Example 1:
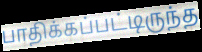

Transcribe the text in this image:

பாதிக்கப்பட்டிருந்த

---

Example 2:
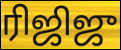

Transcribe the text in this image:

ரிஜிஜு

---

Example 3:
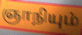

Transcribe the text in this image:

ஞாநியும்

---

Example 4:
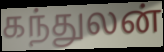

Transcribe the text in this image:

கந்துலன்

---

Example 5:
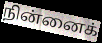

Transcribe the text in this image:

நின்னைக்